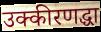
उक्कीरणद्धा